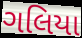
ગલિયા